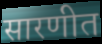
सारणीत